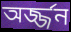
অর্জ্জন